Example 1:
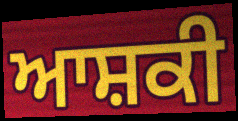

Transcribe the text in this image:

ਆਸ਼ਕੀ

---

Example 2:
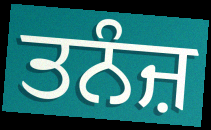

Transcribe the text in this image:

ਤਨੰਜ਼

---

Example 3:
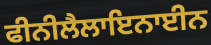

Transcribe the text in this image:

ਫੀਨੀਲੈਲਾਇਨਾਈਨ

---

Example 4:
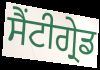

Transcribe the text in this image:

ਸੈਂਟੀਗ੍ਰੇਡ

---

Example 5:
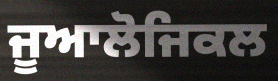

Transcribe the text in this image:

ਜੂਆਲੋਜਿਕਲ